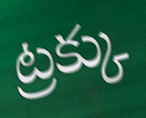
ట్రక్కు